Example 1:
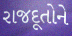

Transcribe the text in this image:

રાજદૂતોને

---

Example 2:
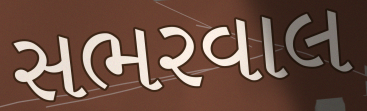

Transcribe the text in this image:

સભરવાલ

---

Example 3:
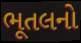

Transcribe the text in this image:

ભૂતલનો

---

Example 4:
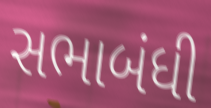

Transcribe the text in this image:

સભાબંધી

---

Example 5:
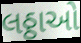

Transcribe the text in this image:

લઠ્ઠાઓ